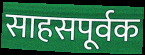
साहसपूर्वक